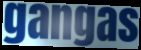
gangas